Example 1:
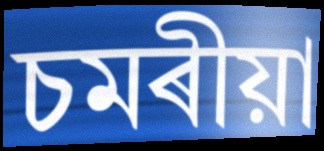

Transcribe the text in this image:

চমৰীয়া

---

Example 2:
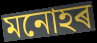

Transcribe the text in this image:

মনোহৰ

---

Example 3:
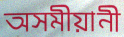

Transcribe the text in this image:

অসমীয়ানী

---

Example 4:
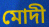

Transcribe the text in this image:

মোদী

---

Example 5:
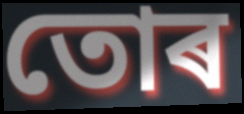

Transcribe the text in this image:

তোৰ